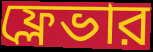
ফ্লেভার